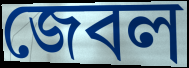
জেবল